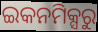
ଇକନମିକ୍ସରୁ